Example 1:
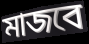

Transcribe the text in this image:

মাজবে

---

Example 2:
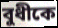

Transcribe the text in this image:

বুধীকে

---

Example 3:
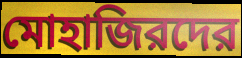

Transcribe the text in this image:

মোহাজিরদের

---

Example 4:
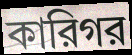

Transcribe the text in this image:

কারিগর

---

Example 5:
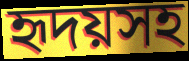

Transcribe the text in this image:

হৃদয়সহ